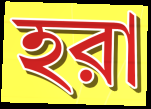
হরা